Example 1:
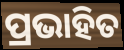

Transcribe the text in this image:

ପ୍ରଭାହିତ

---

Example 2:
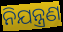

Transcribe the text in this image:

ନିଯନ୍ତ୍ରଣ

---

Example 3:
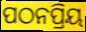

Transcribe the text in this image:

ପଠନପ୍ରିୟ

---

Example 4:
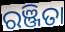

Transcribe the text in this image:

ରଞ୍ଜିତା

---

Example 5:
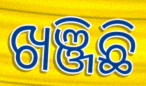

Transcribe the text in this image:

ଖଞ୍ଜିଛି